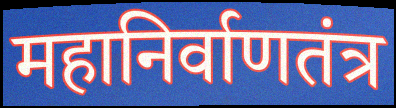
महानिर्वाणतंत्र